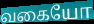
வகையோ